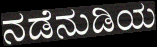
ನಡೆನುಡಿಯ